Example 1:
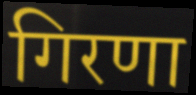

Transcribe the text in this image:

गिरणा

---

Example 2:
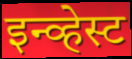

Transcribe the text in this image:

इन्व्हेस्ट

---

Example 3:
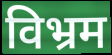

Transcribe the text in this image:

विभ्रम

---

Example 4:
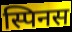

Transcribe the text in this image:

स्पिनस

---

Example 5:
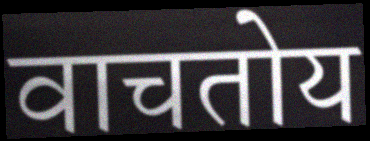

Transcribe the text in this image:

वाचतोय